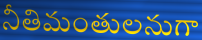
నీతిమంతులనుగా